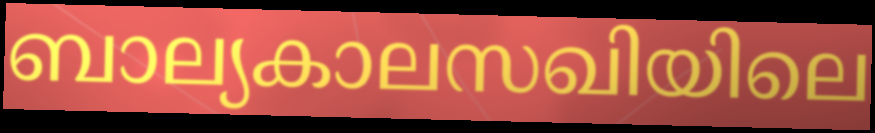
ബാല്യകാലസഖിയിലെ